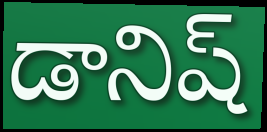
డానిష్